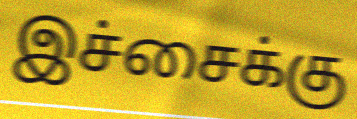
இச்சைக்கு